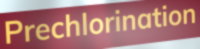
Prechlorination